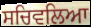
ਸਚਿਵਲਿਆ